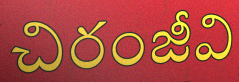
చిరంజీవి